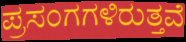
ಪ್ರಸಂಗಗಳಿರುತ್ತವೆ